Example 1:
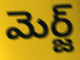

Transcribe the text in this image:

మెర్జ్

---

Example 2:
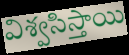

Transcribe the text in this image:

విశ్వసిస్తాయి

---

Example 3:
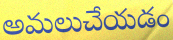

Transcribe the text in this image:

అమలుచేయడం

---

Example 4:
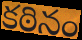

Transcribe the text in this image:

కఠినం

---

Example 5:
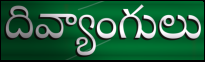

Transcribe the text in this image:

దివ్యాంగులు